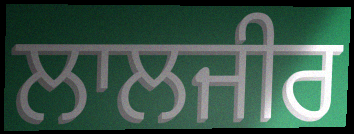
ਲਾਲਜੀਰ